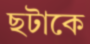
ছটাকে